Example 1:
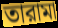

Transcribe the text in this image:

তারামা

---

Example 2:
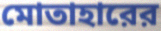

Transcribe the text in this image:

মোতাহারের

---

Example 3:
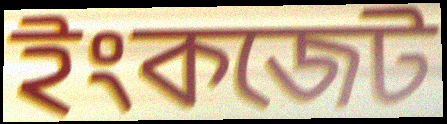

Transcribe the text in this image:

ইংকজেট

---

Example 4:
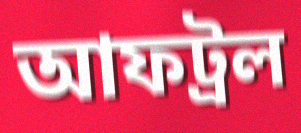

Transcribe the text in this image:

আফট্রল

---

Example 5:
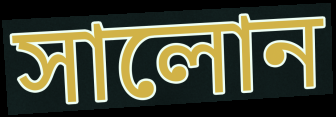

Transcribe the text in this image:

সালোন